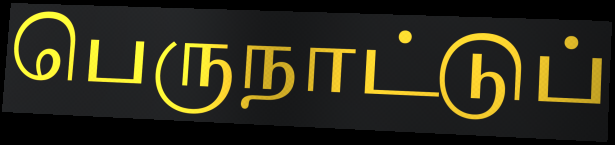
பெருநாட்டுப்